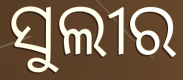
ସୁଲୀର